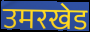
उमरखेड